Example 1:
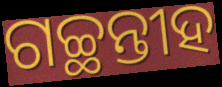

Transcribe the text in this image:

ଗଚ୍ଛନ୍ତୀହ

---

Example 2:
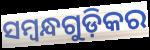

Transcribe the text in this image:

ସମ୍ବନ୍ଧଗୁଡ଼ିକର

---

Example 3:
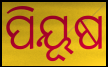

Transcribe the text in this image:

ପିୟୂଷ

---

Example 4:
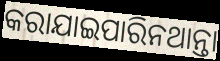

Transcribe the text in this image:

କରାଯାଇପାରିନଥାନ୍ତା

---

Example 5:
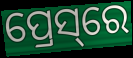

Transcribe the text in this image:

ପ୍ରେସ୍‌ରେ